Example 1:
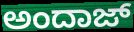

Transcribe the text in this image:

ಅಂದಾಜ್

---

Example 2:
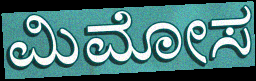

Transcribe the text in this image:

ಮಿಮೋಸ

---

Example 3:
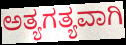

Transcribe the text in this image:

ಅತ್ಯಗತ್ಯವಾಗಿ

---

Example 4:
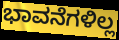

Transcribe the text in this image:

ಭಾವನೆಗಳಿಲ್ಲ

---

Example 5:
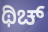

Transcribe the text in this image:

ಥಿಚ್